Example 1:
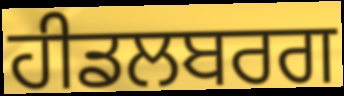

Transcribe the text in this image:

ਹੀਡਲਬਰਗ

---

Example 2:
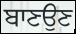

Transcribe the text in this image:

ਬਾਣਉਣ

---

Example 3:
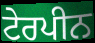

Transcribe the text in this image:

ਟੇਰਪੀਨ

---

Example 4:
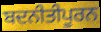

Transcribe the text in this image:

ਬਦਨੀਤੀਪੂਰਨ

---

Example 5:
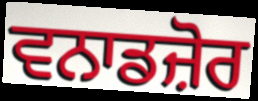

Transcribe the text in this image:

ਵਨਾਡਜ਼ੋਰ